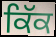
ਕਿੱਕ